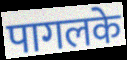
पागलके